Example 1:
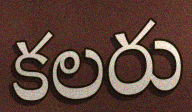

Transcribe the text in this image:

కలరు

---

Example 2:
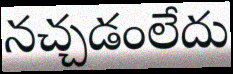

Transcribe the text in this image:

నచ్చడంలేదు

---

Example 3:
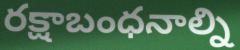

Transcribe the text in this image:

రక్షాబంధనాల్ని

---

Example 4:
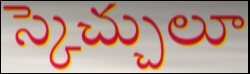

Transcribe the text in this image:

స్కెచ్చులూ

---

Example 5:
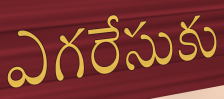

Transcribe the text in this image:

ఎగరేసుకు